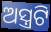
ଅସ୍ତ୍ରଟି